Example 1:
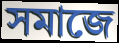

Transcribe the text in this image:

সমাজে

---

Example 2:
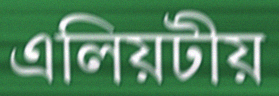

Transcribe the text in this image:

এলিয়টীয়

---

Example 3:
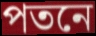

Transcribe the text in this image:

পতনে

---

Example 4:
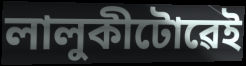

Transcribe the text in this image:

লালুকীটোৱেই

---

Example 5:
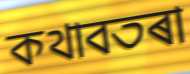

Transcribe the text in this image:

কথাবতৰা